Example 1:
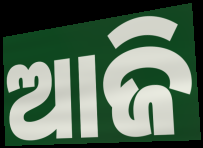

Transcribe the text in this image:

ଆଜି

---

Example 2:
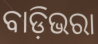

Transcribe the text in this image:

ବାଡ଼ିଭରା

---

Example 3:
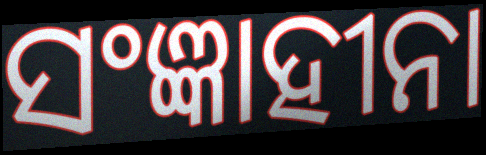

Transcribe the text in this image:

ସଂଜ୍ଞାହୀନା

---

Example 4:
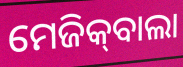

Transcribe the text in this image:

ମେଜିକ୍‍ବାଲା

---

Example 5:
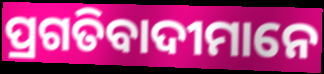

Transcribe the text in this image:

ପ୍ରଗତିବାଦୀମାନେ